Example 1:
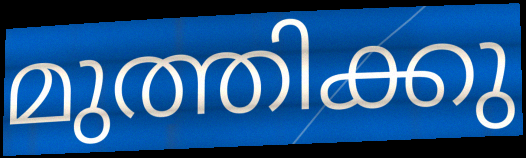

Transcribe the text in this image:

മുത്തിക്കു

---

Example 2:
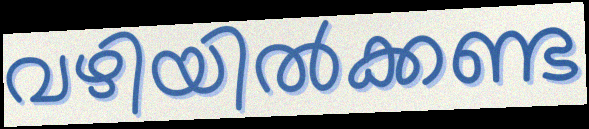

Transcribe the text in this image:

വഴിയിൽക്കണ്ട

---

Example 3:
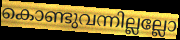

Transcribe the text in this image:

കൊണ്ടുവന്നില്ലല്ലോ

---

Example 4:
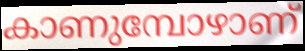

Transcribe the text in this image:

കാണുമ്പോഴാണ്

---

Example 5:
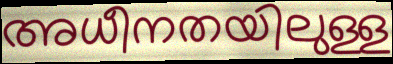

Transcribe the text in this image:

അധീനതയിലുള്ള